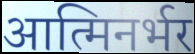
आत्मिनर्भर